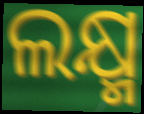
ଲକ୍ଷ୍ମ